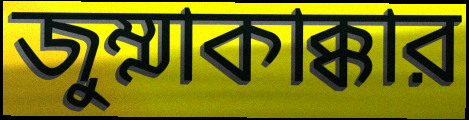
জুম্মাকাক্কার